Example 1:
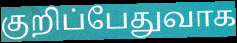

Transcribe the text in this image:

குறிப்பேதுவாக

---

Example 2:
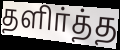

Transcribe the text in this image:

தளிர்த்த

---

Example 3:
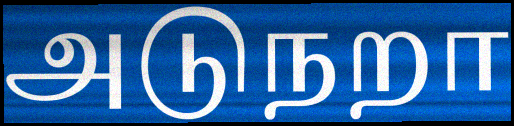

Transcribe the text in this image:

அடுநறா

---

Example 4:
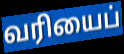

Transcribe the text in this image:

வரியைப்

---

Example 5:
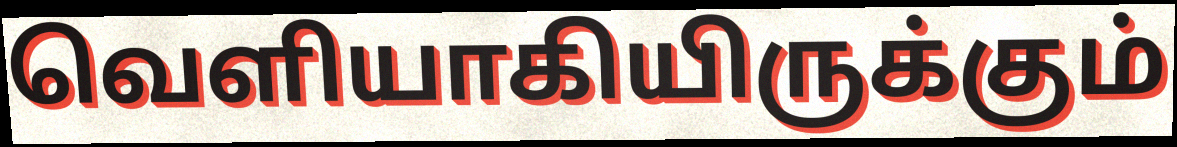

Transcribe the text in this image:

வெளியாகியிருக்கும்